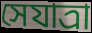
সেযাত্রা